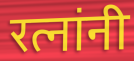
रत्नांनी